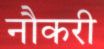
नौकरी